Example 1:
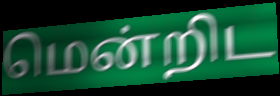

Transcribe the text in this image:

மென்றிட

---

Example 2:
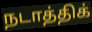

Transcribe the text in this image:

நடாத்திக்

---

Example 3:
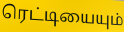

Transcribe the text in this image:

ரெட்டியையும்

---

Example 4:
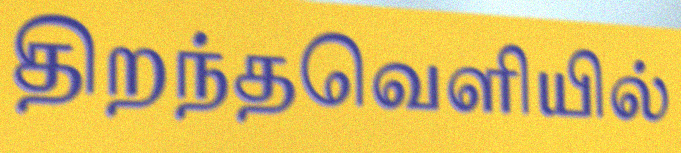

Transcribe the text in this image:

திறந்தவெளியில்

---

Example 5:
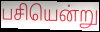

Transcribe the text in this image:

பசியென்று